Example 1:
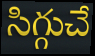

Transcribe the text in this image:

సిగ్గుచే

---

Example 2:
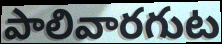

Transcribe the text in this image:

పాలివారగుట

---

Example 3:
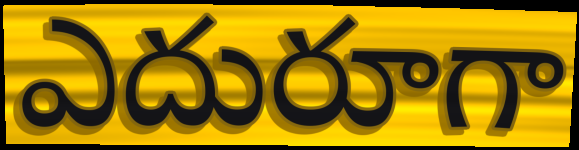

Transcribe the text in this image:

ఎదురూగా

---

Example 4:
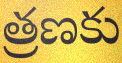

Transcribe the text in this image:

త్రణకు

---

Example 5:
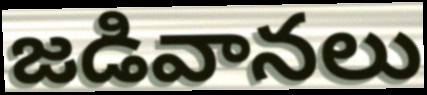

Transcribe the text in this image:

జడివానలు